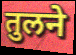
तुलने